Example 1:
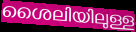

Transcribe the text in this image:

ശൈലിയിലുള്ള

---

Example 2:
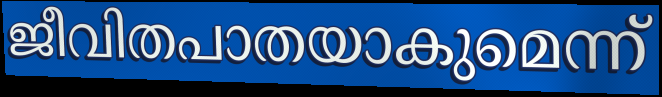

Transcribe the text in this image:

ജീവിതപാതയാകുമെന്ന്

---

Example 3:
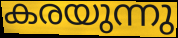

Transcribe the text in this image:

കരയുന്നു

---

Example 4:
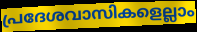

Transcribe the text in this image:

പ്രദേശവാസികളെല്ലാം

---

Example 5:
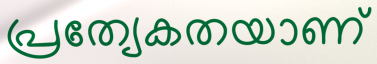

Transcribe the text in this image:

പ്രത്യേകതയാണ്